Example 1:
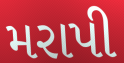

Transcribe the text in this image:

મરાપી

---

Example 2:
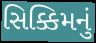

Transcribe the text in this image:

સિક્કિમનું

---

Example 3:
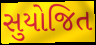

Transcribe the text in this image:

સુયોજિત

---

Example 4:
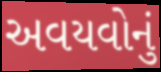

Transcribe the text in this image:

અવયવોનું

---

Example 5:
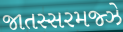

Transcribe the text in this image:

જાતસ્સરમજ્ઝે